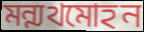
মন্মথমোহন